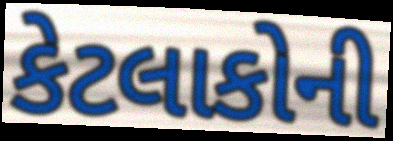
કેટલાકોની